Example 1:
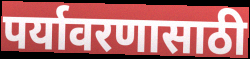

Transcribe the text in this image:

पर्यावरणासाठी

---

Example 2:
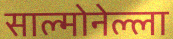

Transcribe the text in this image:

साल्मोनेल्ला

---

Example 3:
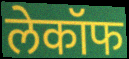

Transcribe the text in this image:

लेकॉफ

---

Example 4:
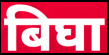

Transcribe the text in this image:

बिघा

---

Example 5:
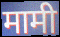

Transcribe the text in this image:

मामी